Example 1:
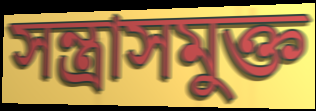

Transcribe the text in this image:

সন্ত্রাসমুক্ত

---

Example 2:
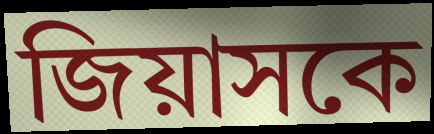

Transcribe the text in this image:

জিয়াসকে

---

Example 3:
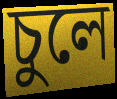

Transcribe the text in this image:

চুলে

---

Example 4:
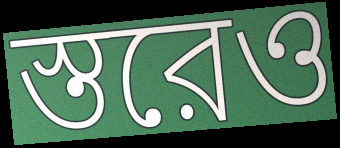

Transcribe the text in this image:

স্তরেও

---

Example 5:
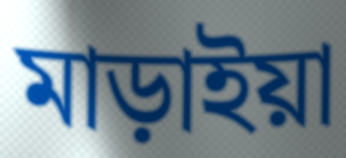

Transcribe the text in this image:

মাড়াইয়া